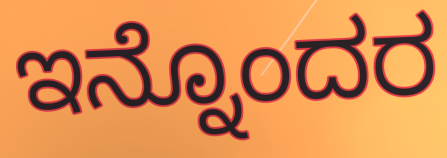
ಇನ್ನೊಂದರ